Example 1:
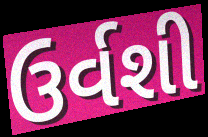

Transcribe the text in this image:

ઉર્વશી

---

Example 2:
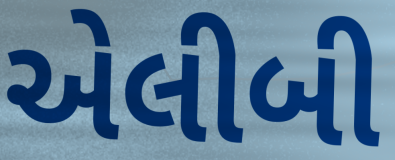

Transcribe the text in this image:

એલીબી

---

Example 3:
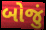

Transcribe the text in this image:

બોજું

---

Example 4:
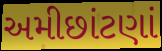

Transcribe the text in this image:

અમીછાંટણાં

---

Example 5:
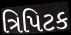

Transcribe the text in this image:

ત્રિપિટક